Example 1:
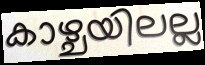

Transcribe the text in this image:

കാഴ്ചയിലല്ല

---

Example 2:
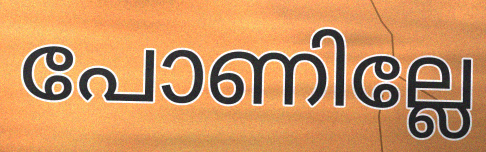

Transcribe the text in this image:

പോണില്ലേ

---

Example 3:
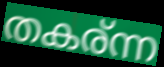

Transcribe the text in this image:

തകര്ന്ന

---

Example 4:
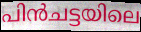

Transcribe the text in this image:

പിൻചട്ടയിലെ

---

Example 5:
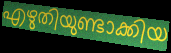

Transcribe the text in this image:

എഴുതിയുണ്ടാക്കിയ